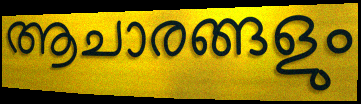
ആചാരങ്ങളും